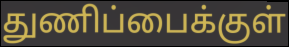
துணிப்பைக்குள்